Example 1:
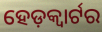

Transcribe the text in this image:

ହେଡ଼କ୍ୱାର୍ଟର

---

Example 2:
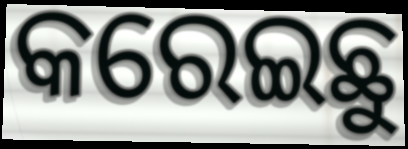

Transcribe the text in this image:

କରେଇଛୁ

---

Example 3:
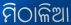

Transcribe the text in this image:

ମିଠାଳିଆ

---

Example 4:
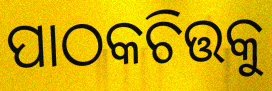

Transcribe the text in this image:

ପାଠକଚିତ୍ତକୁ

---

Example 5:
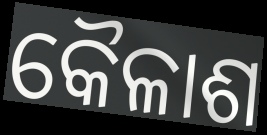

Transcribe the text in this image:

କୈଳାଶ